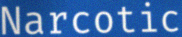
Narcotic